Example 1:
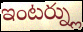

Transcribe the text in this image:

ఇంటర్న్లు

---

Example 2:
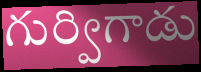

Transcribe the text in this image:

గుర్విగాడు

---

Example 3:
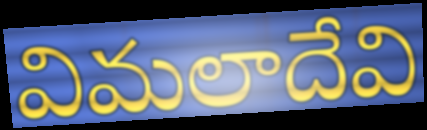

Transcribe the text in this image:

విమలాదేవి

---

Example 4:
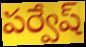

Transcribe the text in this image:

పర్వేష్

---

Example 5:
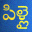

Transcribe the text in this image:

పిళ్లై